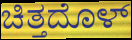
ಚಿತ್ತದೊಳ್